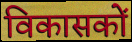
विकासकों